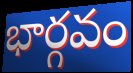
భార్గవం